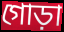
গোড়া